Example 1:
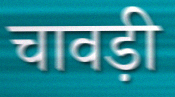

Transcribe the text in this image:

चावड़ी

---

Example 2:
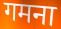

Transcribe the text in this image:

गमना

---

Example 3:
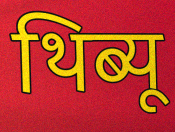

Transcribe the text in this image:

थिब्यू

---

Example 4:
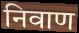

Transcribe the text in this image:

निवाण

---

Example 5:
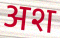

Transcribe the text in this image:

अश